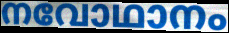
നവോഥാനം